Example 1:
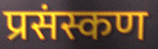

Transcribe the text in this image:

प्रसंस्कण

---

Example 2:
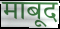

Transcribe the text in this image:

माबूद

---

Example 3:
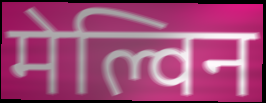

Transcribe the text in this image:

मेल्विन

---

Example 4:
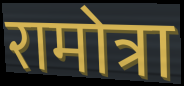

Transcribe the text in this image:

रामोत्रा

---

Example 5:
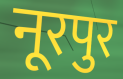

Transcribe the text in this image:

नूरपुर